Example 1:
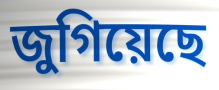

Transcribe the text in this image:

জুগিয়েছে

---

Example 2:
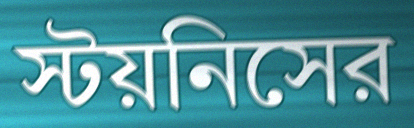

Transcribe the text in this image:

স্টয়নিসের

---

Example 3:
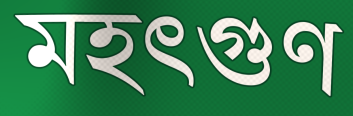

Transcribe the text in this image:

মহৎগুণ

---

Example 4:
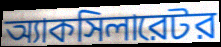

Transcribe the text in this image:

অ্যাকসিলারেটর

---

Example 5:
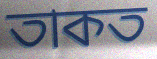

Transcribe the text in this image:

তাকত